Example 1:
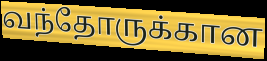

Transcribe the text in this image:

வந்தோருக்கான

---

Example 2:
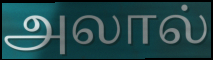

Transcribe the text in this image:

அலால்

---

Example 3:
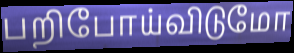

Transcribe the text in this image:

பறிபோய்விடுமோ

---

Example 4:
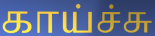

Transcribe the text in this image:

காய்ச்சு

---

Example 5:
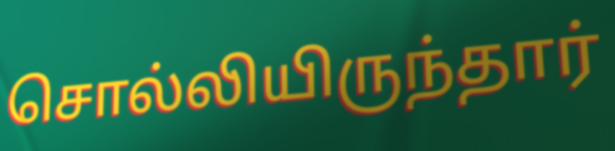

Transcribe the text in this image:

சொல்லியிருந்தார்